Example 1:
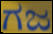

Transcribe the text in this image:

ಗಜ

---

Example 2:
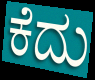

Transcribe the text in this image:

ಕೆದು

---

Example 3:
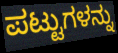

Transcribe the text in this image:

ಪಟ್ಟುಗಳನ್ನು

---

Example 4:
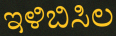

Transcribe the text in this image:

ಇಳಿಬಿಸಿಲ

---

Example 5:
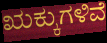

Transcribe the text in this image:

ಋಕ್ಕುಗಳಿವೆ